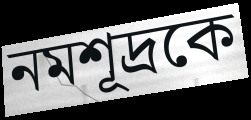
নমশূদ্রকে